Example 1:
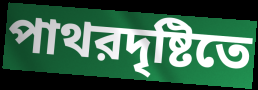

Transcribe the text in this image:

পাথরদৃষ্টিতে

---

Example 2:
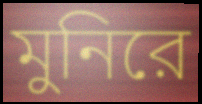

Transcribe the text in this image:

মুনিরে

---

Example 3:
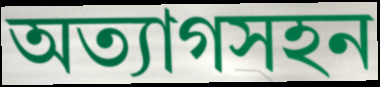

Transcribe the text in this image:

অত্যাগসহন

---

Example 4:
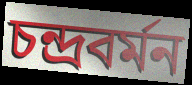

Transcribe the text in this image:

চন্দ্রবর্মন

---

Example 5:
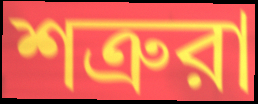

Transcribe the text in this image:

শত্রুরা